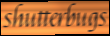
shutterbugs